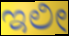
ಇಲೀ